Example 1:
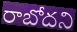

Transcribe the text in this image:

రాబోదని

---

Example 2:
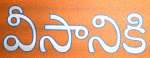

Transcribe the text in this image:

వీసానికి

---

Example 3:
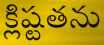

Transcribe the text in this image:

క్లిష్టతను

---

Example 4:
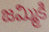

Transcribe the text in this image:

జమ్మికి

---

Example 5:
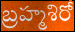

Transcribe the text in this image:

బ్రహ్మశిరో